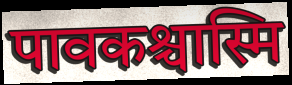
पावकश्चास्मि